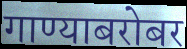
गाण्याबरोबर